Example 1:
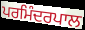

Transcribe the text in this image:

ਪਰਮਿੰਦਰਪਾਲ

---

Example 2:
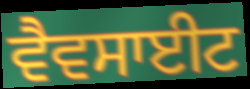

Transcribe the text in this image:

ਵੈਵਸਾਈਟ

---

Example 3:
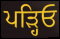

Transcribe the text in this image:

ਪੜ੍ਹਿਓ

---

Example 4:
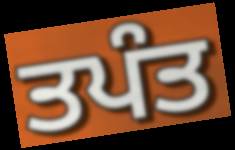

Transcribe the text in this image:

ਤਪੰਤ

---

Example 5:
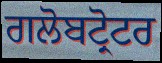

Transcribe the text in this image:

ਗਲੋਬਟ੍ਰੋਟਰ